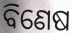
ବିଣେଷ